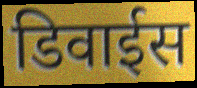
डिवाईस